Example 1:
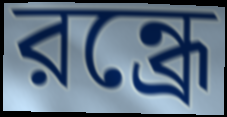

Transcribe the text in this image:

রন্ধ্রে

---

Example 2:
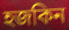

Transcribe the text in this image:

হজকিন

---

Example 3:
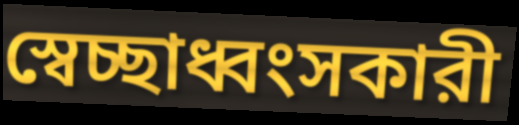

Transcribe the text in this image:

স্বেচ্ছাধ্বংসকারী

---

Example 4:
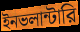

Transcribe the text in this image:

ইনভলান্টারি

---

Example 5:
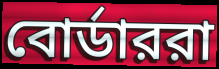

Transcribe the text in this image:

বোর্ডাররা